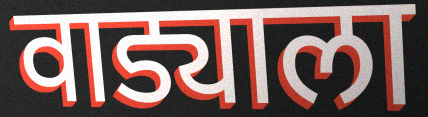
वाड्याला